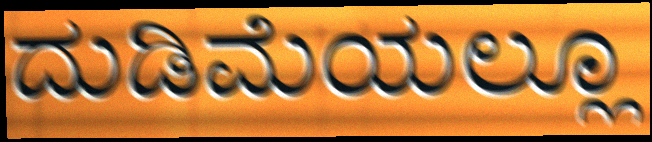
ದುಡಿಮೆಯಲ್ಲೂ